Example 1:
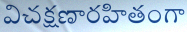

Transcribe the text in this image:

విచక్షణారహితంగా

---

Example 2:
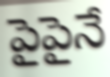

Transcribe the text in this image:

పైపైనే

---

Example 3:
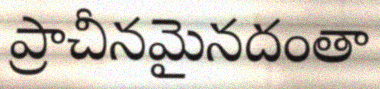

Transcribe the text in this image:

ప్రాచీనమైనదంతా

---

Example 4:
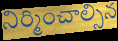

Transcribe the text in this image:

నిర్మించాల్సిన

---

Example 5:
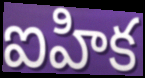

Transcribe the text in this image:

ఐహిక